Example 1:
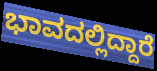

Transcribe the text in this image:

ಭಾವದಲ್ಲಿದ್ದಾರೆ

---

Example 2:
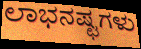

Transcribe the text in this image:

ಲಾಭನಷ್ಟಗಳು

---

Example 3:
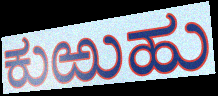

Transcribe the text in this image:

ಕುಱುಹು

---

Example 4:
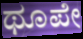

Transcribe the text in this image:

ಥೂಪೇ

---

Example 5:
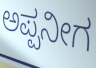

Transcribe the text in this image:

ಅಪ್ಪನೀಗ